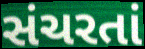
સંચરતાં